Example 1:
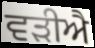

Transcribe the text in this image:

ਵੜੀਐ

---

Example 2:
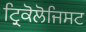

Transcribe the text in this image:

ਟ੍ਰਿਕੋਲੋਜਿਸਟ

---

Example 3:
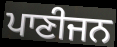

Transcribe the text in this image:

ਪਾਣੀਜਨ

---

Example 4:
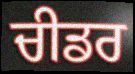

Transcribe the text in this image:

ਚੀਡਰ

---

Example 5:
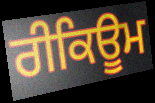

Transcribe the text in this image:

ਰੀਕਿਊਮ